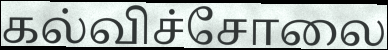
கல்விச்சோலை